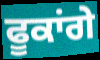
ਫੂਕਾਂਗੇ